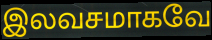
இலவசமாகவே